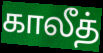
காலீத்